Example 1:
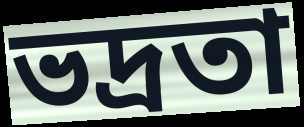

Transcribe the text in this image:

ভদ্ৰতা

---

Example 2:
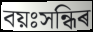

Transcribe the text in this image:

বয়ঃসন্ধিৰ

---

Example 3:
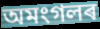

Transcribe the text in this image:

অমংগলৰ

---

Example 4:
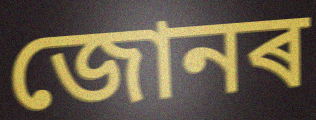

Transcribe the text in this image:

জোনৰ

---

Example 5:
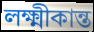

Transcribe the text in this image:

লক্ষ্মীকান্ত